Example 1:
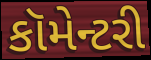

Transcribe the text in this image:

કૉમેન્ટરી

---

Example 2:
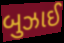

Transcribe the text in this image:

બુઝાઈ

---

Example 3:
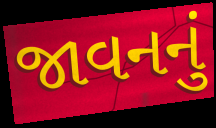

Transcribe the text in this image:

જાવનનું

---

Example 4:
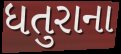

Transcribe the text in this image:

ધતુરાના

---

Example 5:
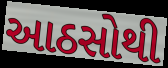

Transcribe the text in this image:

આઠસોથી